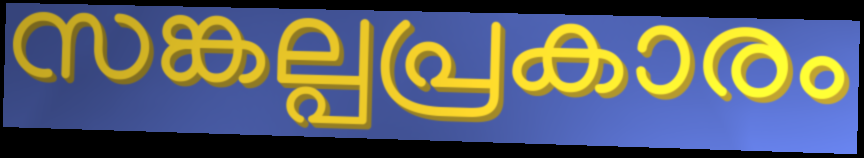
സങ്കല്പപ്രകാരം